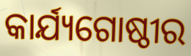
କାର୍ଯ୍ୟଗୋଷ୍ଠୀର